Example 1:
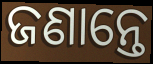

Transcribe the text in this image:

ଜଣାନ୍ତେ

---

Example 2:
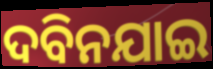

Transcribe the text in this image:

ଦବିନଯାଇ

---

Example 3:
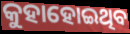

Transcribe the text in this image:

କୁହାହୋଇଥିବ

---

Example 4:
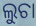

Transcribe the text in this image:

ଲୁଚା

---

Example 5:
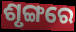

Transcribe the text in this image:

ଶୃଙ୍ଗରେ